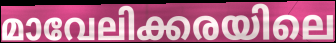
മാവേലിക്കരയിലെ